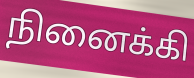
நினைக்கி